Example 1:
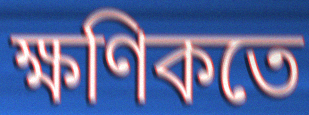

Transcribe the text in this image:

ক্ষণিকতে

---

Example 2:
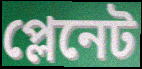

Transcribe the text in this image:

প্লেনেট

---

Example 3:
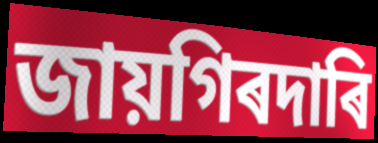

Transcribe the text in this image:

জায়গিৰদাৰি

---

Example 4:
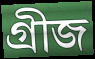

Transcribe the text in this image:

গ্ৰীজ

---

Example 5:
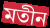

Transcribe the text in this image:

মতীন